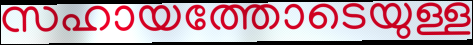
സഹായത്തോടെയുള്ള